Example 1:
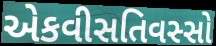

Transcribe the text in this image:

એકવીસતિવસ્સો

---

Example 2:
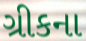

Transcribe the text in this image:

ગ્રીકના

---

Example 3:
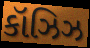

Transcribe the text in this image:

કૉઝિઝ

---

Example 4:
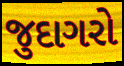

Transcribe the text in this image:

જુદાગરો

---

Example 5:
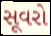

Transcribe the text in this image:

સૂવરો